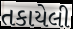
તકાયેલી